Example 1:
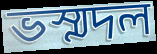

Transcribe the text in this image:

ভস্মদল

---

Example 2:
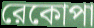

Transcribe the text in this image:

রেকোপা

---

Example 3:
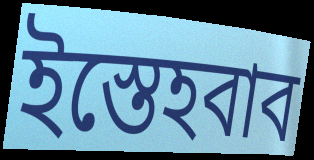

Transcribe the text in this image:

ইস্তেহবাব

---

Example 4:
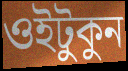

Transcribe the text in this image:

ওইটুকুন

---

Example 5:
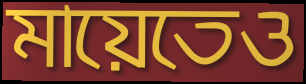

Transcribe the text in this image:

মায়েতেও